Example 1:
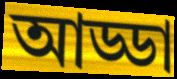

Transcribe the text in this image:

আড্ডা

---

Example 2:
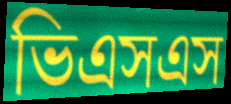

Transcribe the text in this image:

ভিএসএস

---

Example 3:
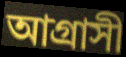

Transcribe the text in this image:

আগ্রাসী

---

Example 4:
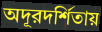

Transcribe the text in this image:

অদূরদর্শিতায়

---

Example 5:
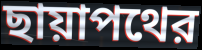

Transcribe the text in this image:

ছায়াপথের